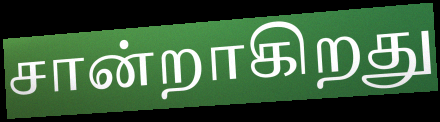
சான்றாகிறது